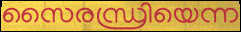
സൈരന്ധ്രിയെന്ന